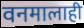
वनमालाही